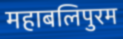
महाबलिपुरम